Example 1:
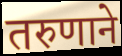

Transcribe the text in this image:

तरुणाने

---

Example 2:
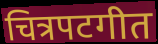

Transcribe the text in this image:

चित्रपटगीत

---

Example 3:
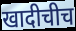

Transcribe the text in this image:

खादीचीच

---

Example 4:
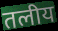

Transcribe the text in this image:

तलीय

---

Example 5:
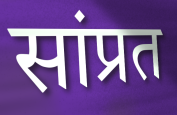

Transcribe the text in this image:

सांप्रत